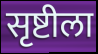
सृष्टीला